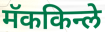
मॅककिन्ले